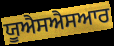
ਯੂਐਸਐਸਆਰ